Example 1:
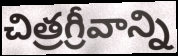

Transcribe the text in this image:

చిత్రగ్రీవాన్ని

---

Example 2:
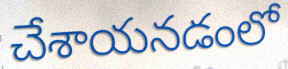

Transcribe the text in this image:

చేశాయనడంలో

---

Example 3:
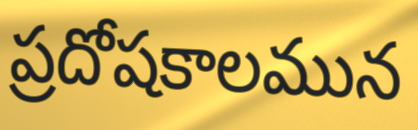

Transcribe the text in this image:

ప్రదోషకాలమున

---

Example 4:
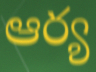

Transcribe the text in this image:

ఆర్య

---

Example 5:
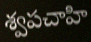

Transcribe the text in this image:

శ్వపచాహి